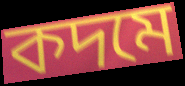
কদমে